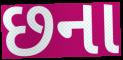
છના